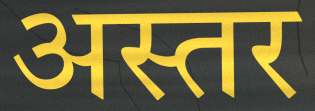
अस्तर